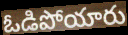
ఓడిపోయారు